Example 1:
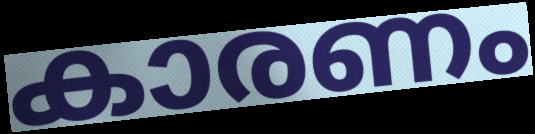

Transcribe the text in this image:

കാരണം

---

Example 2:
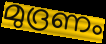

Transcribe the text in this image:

മുദ്രണം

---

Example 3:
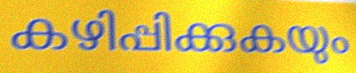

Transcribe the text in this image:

കഴിപ്പിക്കുകയും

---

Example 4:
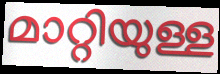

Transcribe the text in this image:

മാറ്റിയുള്ള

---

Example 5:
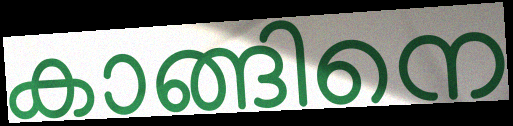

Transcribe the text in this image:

കാങ്ങിനെ